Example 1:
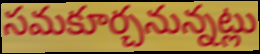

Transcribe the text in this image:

సమకూర్చనున్నట్లు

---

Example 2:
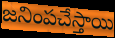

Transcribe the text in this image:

జనింపచేస్తాయి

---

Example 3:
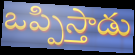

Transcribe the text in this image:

ఒప్పిస్తాడు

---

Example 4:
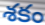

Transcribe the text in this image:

శకం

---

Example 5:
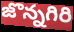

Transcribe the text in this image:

జొన్నగిరి